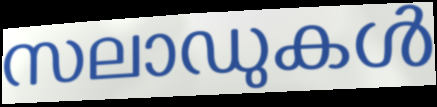
സലാഡുകൾ